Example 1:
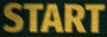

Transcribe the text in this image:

START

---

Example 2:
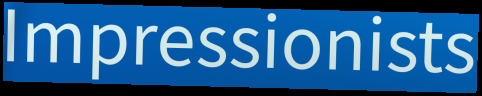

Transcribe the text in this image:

Impressionists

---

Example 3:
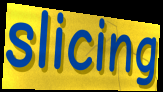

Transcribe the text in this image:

slicing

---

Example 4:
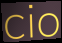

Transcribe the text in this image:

cio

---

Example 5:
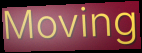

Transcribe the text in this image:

Moving